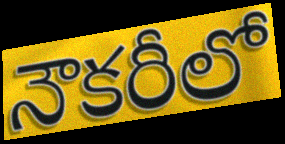
నౌకరీలో